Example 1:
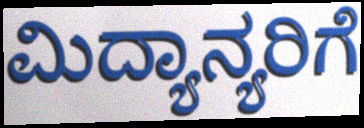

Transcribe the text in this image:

ಮಿದ್ಯಾನ್ಯರಿಗೆ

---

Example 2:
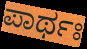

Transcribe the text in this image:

ಪಾರ್ಥಃ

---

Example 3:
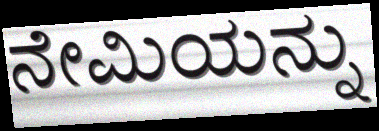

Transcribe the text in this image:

ನೇಮಿಯನ್ನು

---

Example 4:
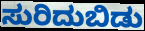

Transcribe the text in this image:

ಸುರಿದುಬಿಡು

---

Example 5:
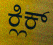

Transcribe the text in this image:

ಕ್ಲಿಕ್